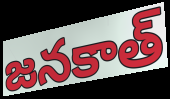
జనకాత్